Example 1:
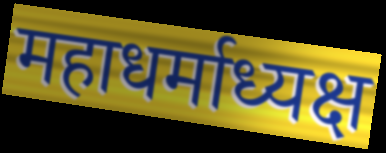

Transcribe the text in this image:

महाधर्माध्यक्ष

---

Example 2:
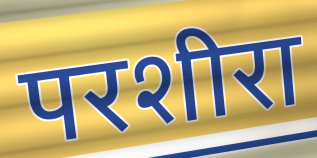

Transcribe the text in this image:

परशीरा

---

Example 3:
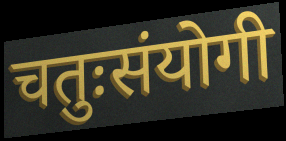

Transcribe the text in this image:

चतुःसंयोगी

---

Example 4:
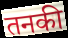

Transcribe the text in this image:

तनकी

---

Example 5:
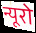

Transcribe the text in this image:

न्यूरो